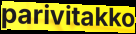
parivitakko